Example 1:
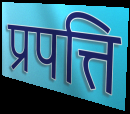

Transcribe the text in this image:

प्रपत्ति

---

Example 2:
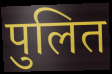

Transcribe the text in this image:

पुलित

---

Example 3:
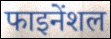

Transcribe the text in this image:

फाइनेंशल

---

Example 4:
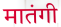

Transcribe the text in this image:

मातंगी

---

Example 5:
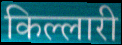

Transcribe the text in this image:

किल्लारी